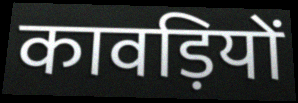
कावड़ियों